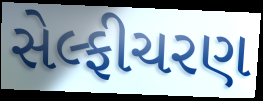
સેલ્ફીચરણ